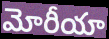
మోరీయా